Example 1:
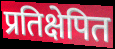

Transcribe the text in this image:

प्रतिक्षेपित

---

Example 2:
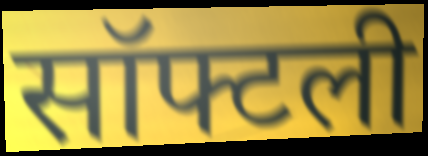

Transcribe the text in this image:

सॉफ्टली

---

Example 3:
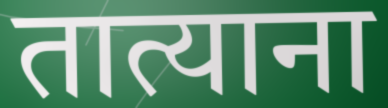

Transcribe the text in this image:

तात्याना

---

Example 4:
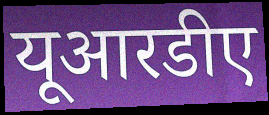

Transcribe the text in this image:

यूआरडीए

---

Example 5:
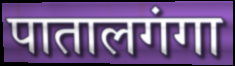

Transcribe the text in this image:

पातालगंगा